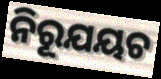
ନିରୂଯୟଚ